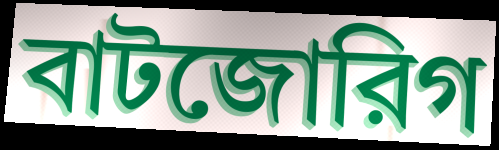
বাটজোরিগ